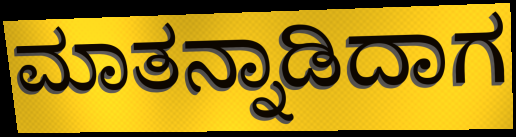
ಮಾತನ್ನಾಡಿದಾಗ